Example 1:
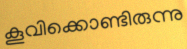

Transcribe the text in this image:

കൂവിക്കൊണ്ടിരുന്നു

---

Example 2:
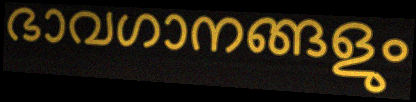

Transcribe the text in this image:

ഭാവഗാനങ്ങളും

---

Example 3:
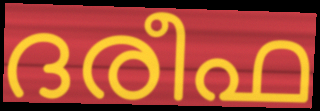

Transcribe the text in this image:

ദരീഫ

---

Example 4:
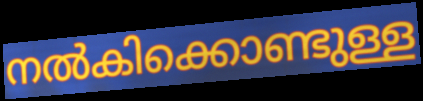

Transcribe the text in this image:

നൽകിക്കൊണ്ടുള്ള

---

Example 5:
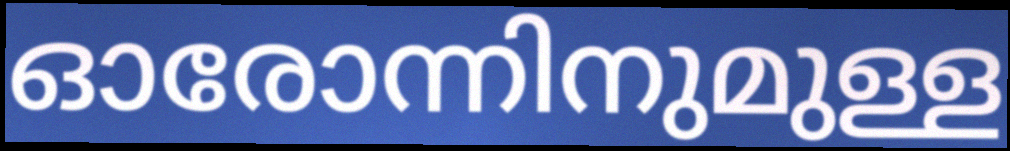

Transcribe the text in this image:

ഓരോന്നിനുമുള്ള